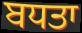
ਬਧਤਾ